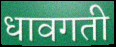
धावगती